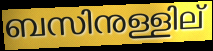
ബസിനുള്ളില്